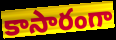
కాసారంగా